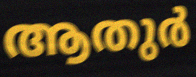
ആതുർ